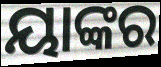
ୟାଙ୍କର